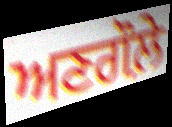
ਅਣਗੌਲ਼ੇ